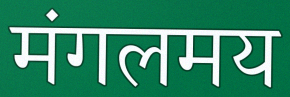
मंगलमय